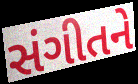
સંગીતને